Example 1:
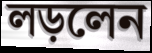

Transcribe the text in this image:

লড়লেন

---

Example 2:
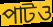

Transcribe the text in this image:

পাটও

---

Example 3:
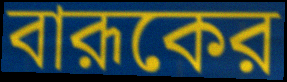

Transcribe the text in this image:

বারূকের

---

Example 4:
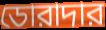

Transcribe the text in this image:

ডোরাদার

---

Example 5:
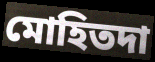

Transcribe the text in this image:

মোহিতদা